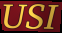
USI